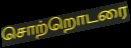
சொற்றொடரை